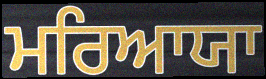
ਮਰਿਆਯਾ